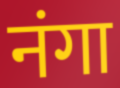
नंगा